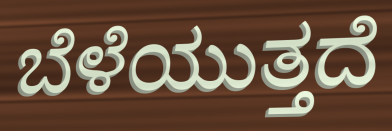
ಬೆಳೆಯುತ್ತದೆ